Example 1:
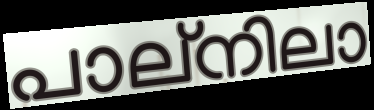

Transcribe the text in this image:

പാല്നിലാ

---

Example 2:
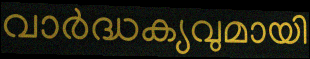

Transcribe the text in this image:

വാർദ്ധക്യവുമായി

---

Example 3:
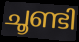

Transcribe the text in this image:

ചൂണ്ടി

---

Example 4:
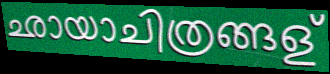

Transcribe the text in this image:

ഛായാചിത്രങ്ങള്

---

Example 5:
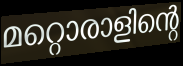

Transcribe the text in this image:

മറ്റൊരാളിന്റെ